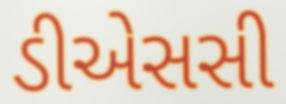
ડીએસસી